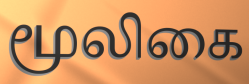
மூலிகை